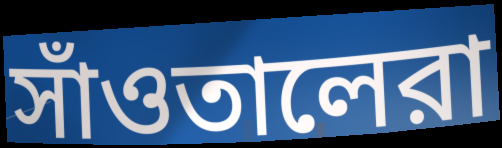
সাঁওতালেরা